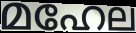
മഹേല